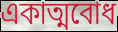
একাত্মবোধ